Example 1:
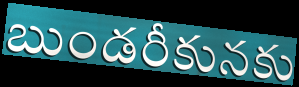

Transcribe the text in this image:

బుండరీకునకు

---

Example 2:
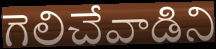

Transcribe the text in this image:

గెలిచేవాడిని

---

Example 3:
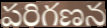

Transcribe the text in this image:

పరిగణన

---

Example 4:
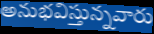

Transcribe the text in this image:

అనుభవిస్తున్నవారు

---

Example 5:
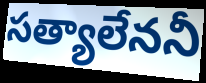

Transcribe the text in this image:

సత్యాలేననీ